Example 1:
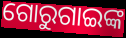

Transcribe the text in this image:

ଗୋରୁଗାଇଙ୍କ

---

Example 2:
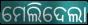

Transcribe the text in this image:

ମେଲିଦେଲା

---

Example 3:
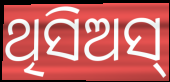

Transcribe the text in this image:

ଥିସିଅସ୍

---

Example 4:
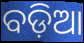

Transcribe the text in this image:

ବଡ଼ିଆ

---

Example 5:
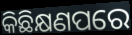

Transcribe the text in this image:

କିଛିକ୍ଷଣପରେ